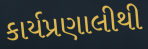
કાર્યપ્રણાલીથી